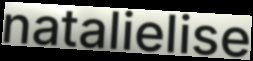
natalielise